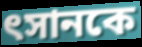
ৎসানকে